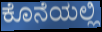
ಕೊನೆಯಲ್ಲಿ